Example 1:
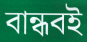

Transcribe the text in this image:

বান্ধবই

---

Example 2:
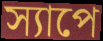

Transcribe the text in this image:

স্যাপে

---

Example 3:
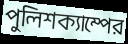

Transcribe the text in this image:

পুলিশক্যাম্পের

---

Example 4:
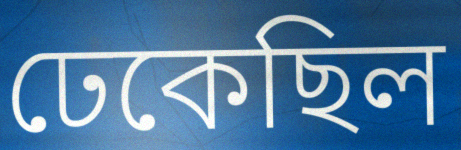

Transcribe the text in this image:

ঢেকেছিল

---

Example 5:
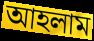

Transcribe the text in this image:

আহলাম